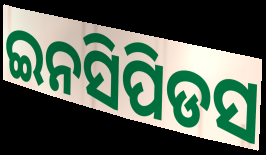
ଇନସିପିଡସ